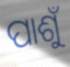
ପାଶୁଁ